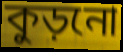
কুড়নো